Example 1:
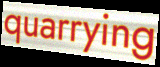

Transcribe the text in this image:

quarrying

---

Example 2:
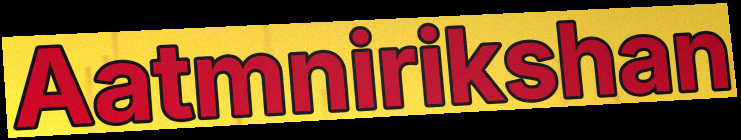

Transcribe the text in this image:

Aatmnirikshan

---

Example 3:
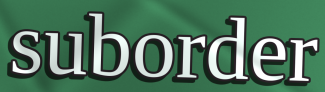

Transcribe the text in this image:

suborder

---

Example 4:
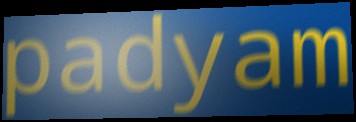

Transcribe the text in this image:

padyam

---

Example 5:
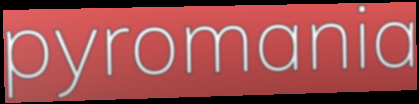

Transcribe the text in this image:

pyromania